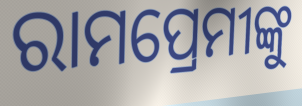
ରାମପ୍ରେମୀଙ୍କୁ